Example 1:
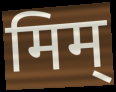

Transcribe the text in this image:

मिम्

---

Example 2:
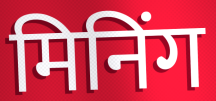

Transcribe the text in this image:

मिनिंग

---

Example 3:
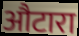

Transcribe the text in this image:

औटारा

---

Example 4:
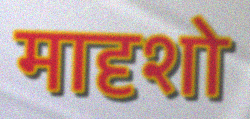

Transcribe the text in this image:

मादृशो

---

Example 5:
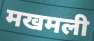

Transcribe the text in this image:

मखमली